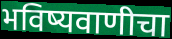
भविष्यवाणीचा